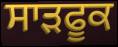
ਸਾੜਫੂਕ